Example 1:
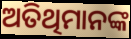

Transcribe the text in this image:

ଅତିଥିମାନଙ୍କ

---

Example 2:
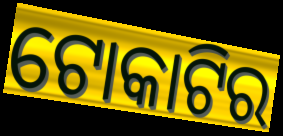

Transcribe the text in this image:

ଟୋକାଟିର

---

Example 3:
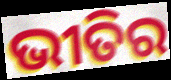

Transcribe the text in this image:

ଭୀତିର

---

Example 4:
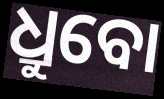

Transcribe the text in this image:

ଧ୍ରୁବୋ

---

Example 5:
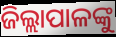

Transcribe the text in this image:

ଜିଲ୍ଲାପାଳଙ୍କୁ